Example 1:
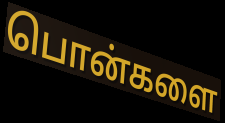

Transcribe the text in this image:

பொன்களை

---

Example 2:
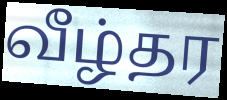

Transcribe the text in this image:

வீழ்தர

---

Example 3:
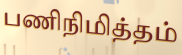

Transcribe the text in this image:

பணிநிமித்தம்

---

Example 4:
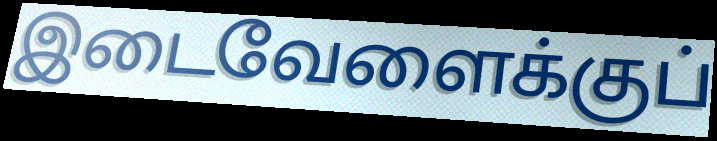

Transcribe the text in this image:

இடைவேளைக்குப்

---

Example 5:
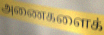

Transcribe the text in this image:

அணைகளைக்